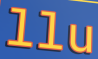
llu